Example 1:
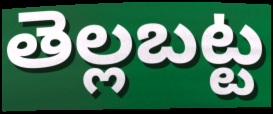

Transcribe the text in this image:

తెల్లబట్ట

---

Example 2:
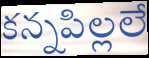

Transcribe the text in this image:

కన్నపిల్లలే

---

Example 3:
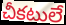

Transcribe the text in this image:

చీకటులే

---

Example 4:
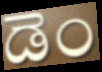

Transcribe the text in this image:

డెం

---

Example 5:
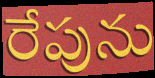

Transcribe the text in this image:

రేపును